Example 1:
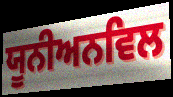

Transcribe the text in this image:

ਯੂਨੀਅਨਵਿਲ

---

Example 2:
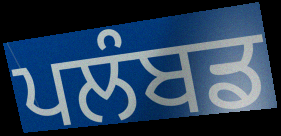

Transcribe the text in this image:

ਪਲੰਬਡ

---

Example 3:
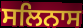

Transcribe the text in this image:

ਸਲਿਨਾਸ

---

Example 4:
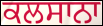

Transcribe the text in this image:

ਕਲਸਾਨਾ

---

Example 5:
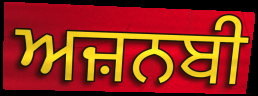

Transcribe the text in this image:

ਅਜ਼ਨਬੀ